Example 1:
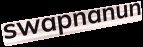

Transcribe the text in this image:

swapnanun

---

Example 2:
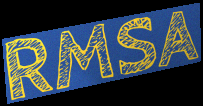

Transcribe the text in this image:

RMSA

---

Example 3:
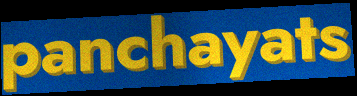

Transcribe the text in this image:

panchayats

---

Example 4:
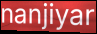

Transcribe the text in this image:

nanjiyar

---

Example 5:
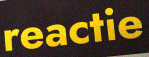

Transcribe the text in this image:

reactie